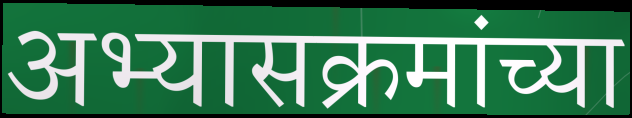
अभ्यासक्रमांच्या